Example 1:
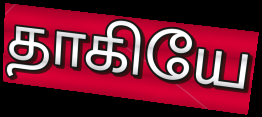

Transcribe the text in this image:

தாகியே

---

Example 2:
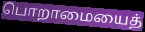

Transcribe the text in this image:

பொறாமையைத்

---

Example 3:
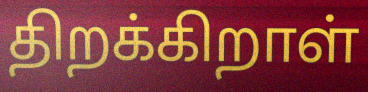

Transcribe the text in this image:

திறக்கிறாள்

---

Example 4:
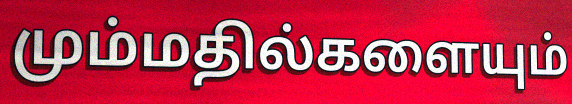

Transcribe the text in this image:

மும்மதில்களையும்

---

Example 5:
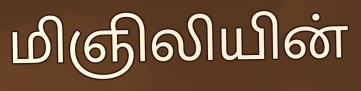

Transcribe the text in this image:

மிஞிலியின்